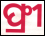
ଫ୍ରୀ